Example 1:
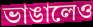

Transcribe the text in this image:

ভাঙালেও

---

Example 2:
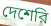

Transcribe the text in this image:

দেশেরি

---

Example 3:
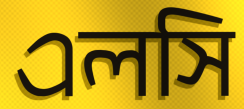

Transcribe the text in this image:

এলসি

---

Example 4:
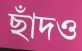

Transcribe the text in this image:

ছাঁদও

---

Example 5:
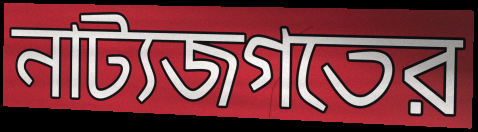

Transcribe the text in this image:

নাট্যজগতের